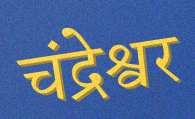
चंद्रेश्वर